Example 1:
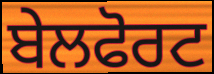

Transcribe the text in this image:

ਬੇਲਫੋਰਟ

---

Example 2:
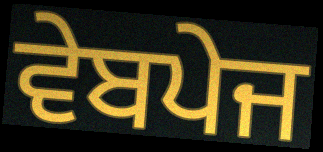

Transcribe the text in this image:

ਵੇਬਪੇਜ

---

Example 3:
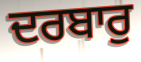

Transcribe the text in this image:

ਦਰਬਾਰੁ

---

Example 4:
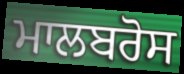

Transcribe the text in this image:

ਮਾਲਬਰੋਸ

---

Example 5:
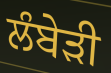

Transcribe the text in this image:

ਲੰਬੇੜੀ